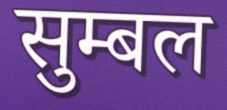
सुम्बल